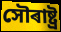
সৌৰাষ্ট্ৰ